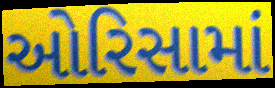
ઓરિસામાં